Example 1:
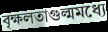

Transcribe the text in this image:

বৃক্ষলতাগুল্মমধ্যে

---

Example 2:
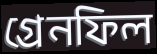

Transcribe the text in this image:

গ্রেনফিল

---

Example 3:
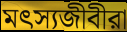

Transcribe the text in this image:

মৎস্যজীবীরা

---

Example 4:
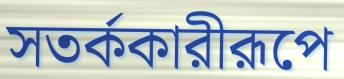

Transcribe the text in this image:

সতর্ককারীরূপে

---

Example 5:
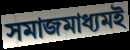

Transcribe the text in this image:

সমাজমাধ্যমই